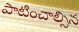
పాటించాల్సిన